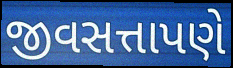
જીવસત્તાપણે